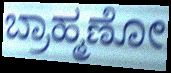
ಬ್ರಾಹ್ಮಣೋ